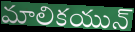
మాలికయున్